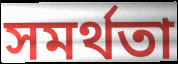
সমর্থতা